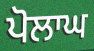
ਪੋਲਾਘ